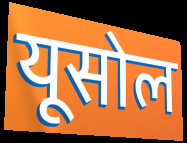
यूसोल